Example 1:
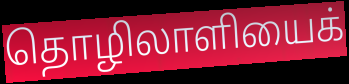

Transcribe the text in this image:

தொழிலாளியைக்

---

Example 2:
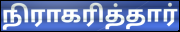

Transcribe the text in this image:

நிராகரித்தார்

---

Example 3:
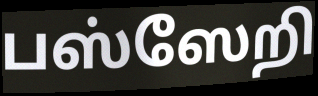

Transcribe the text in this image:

பஸ்ஸேறி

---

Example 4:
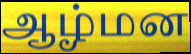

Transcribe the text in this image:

ஆழ்மன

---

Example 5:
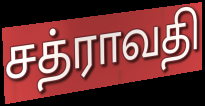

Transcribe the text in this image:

சத்ராவதி